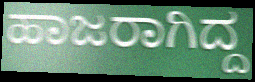
ಹಾಜರಾಗಿದ್ದ